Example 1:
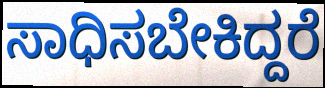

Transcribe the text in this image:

ಸಾಧಿಸಬೇಕಿದ್ದರೆ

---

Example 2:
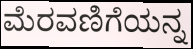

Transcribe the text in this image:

ಮೆರವಣಿಗೆಯನ್ನ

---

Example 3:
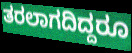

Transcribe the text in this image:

ತರಲಾಗದಿದ್ದರೂ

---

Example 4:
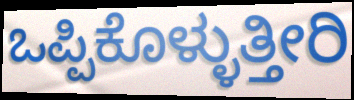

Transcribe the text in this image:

ಒಪ್ಪಿಕೊಳ್ಳುತ್ತೀರಿ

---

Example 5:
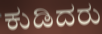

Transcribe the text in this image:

ಕುಡಿದರು